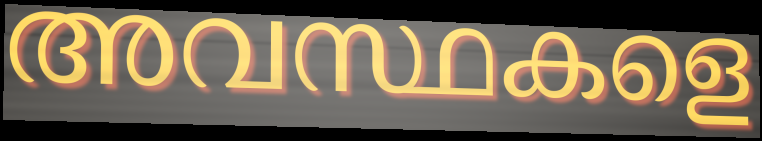
അവസ്ഥകളെ